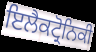
ਇਲੈਕਟ੍ਰੋਨਿਕੀ